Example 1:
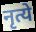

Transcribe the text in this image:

नृत्ये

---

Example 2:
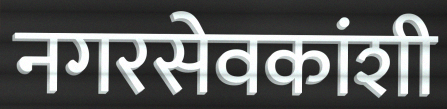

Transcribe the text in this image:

नगरसेवकांशी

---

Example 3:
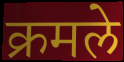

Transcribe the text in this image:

क्रमले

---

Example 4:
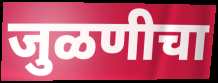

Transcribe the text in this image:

जुळणीचा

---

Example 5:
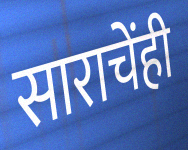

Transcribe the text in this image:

साराचेंही